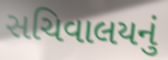
સચિવાલયનું